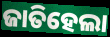
ଜାତିହେଲା